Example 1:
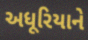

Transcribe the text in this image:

અધૂરિયાને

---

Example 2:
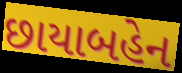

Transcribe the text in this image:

છાયાબહેન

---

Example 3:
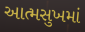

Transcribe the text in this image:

આત્મસુખમાં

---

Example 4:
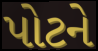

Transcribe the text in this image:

પોટને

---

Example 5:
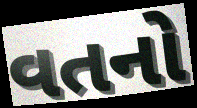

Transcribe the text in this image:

વતનો